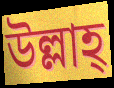
উল্লাহ্